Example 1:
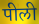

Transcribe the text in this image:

पीली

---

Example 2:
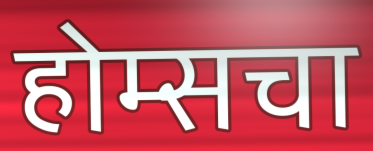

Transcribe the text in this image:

होम्सचा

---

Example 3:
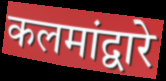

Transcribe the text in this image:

कलमांद्वारे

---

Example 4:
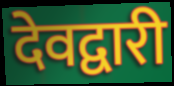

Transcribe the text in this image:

देवद्वारी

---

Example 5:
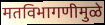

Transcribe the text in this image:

मतविभागणीमुळे